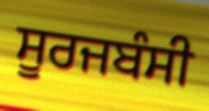
ਸੂਰਜਬੰਸੀ